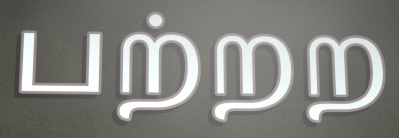
பற்றற